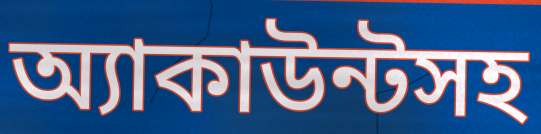
অ্যাকাউন্টসহ